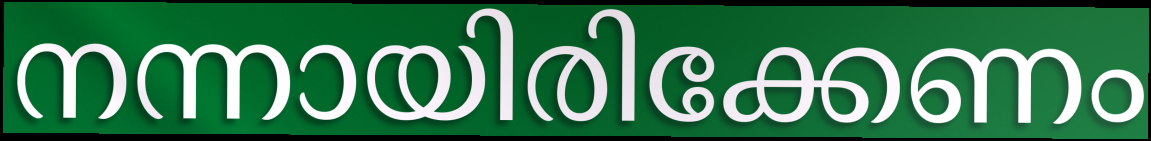
നന്നായിരിക്കേണം